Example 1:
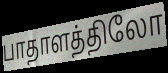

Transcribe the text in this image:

பாதாளத்திலோ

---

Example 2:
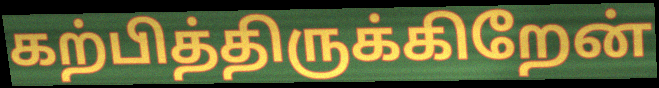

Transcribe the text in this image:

கற்பித்திருக்கிறேன்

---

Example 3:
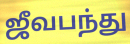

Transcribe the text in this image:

ஜீவபந்து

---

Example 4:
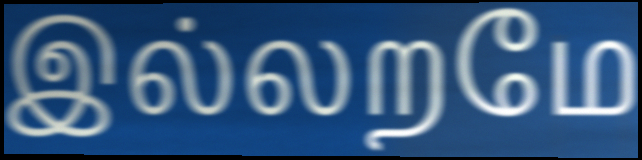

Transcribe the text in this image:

இல்லறமே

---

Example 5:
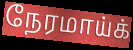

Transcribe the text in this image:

நேரமாய்க்